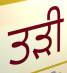
ਤੜੀ